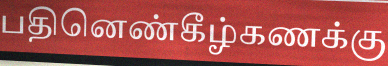
பதினெண்கீழ்கணக்கு